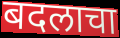
बदलाचा